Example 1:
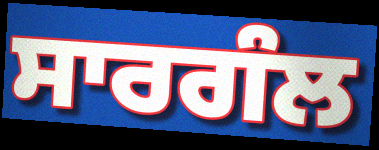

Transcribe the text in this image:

ਸਾਰਗੰਲ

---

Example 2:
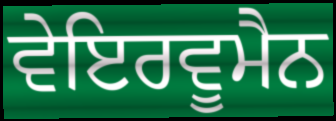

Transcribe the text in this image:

ਵੇਇਰਵੂਮੈਨ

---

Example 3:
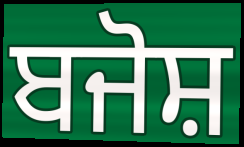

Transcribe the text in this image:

ਬਜੋਸ਼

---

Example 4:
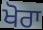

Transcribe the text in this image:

ਖੋਰਾ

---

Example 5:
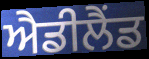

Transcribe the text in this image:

ਐਡੀਲੈਂਡ